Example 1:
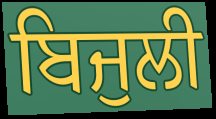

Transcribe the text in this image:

ਬਿਜੁਲੀ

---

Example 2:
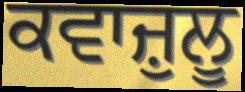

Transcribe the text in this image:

ਕਵਾਜ਼ੁਲੂ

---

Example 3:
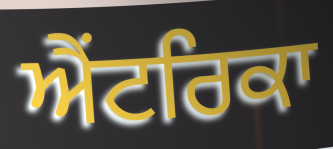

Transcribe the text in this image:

ਐਂਟਰਿਕਾ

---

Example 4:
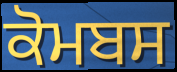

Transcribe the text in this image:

ਕੋਮਬਸ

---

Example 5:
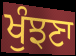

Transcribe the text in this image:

ਖੁੰਝਣਾ